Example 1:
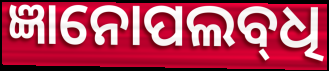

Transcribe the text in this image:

ଜ୍ଞାନୋପଲବ୍‌ଧି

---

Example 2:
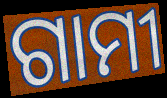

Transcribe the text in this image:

ଗାମୀ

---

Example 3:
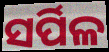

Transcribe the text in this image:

ସର୍ପିଳ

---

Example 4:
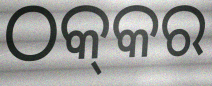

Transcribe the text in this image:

ଠକ୍‍କର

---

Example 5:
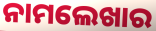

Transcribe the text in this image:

ନାମଲେଖାର